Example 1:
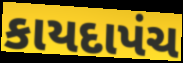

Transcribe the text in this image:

કાયદાપંચ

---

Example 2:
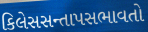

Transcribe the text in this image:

કિલેસસન્તાપસભાવતો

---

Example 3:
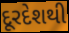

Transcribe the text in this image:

દૂરદેશથી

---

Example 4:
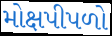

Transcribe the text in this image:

મોક્ષપીપળો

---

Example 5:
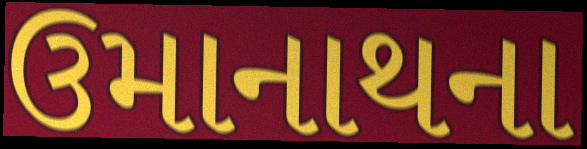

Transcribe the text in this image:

ઉમાનાથના